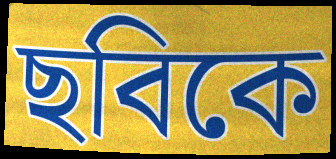
ছবিকে